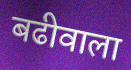
बढीवाला